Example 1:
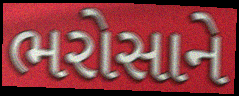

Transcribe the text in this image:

ભરોસાને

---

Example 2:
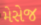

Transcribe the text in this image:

મેસેજ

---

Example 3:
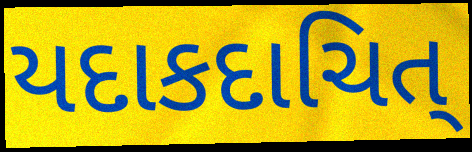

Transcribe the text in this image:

યદાકદાચિત્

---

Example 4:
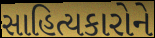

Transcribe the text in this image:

સાહિત્યકારોને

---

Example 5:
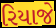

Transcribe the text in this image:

રિયાજે